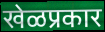
खेळप्रकार